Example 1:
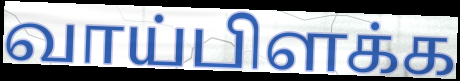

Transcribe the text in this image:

வாய்பிளக்க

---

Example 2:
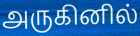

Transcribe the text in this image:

அருகினில்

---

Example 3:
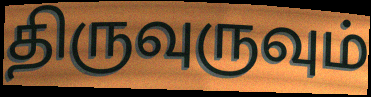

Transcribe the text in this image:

திருவுருவும்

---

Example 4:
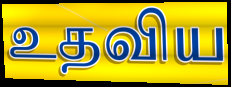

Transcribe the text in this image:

உதவிய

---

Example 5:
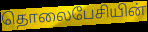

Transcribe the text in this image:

தொலைபேசியின்